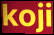
koji